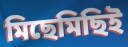
মিছেমিছিই